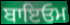
ਬਾਇਓਮ